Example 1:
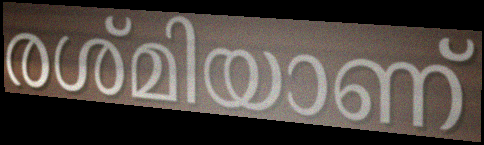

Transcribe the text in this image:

രശ്മിയാണ്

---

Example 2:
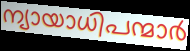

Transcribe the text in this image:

ന്യായാധിപന്മാർ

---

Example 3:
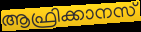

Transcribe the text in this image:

ആഫ്രിക്കാനസ്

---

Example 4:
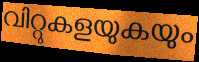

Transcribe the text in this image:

വിറ്റുകളയുകയും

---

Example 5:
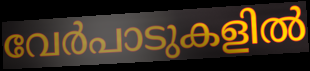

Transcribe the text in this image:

വേർപാടുകളിൽ